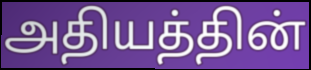
அதியத்தின்